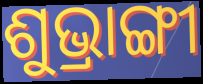
ଶୁଭ୍ରାଙ୍ଗୀ